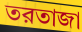
তরতাজা